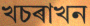
খচৰাখন